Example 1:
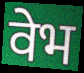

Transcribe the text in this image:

वेभ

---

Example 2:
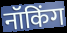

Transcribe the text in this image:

नॉकिंग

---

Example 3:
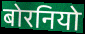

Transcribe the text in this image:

बोरनियो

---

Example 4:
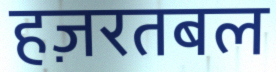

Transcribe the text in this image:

हज़रतबल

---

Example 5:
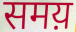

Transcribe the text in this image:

समय़